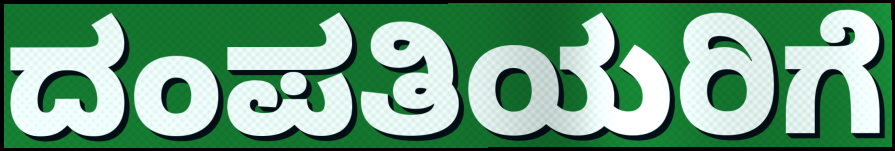
ದಂಪತಿಯರಿಗೆ